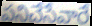
పనిచేసేవారే